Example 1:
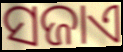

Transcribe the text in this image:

ସଜାଏ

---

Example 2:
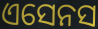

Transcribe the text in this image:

ଏସେନସ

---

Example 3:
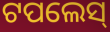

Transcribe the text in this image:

ଟପଲେସ୍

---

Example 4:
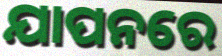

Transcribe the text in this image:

ଯାପନରେ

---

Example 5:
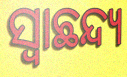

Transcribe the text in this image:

ସ୍ୱାଛନ୍ଦ୍ୟ